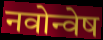
नवोन्वेष